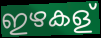
ഇഴകള്